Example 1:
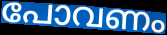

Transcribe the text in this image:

പോവണം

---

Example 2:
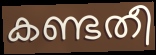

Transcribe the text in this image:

കണ്ടതീ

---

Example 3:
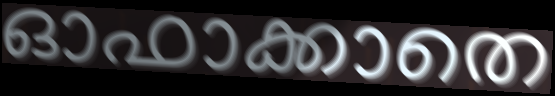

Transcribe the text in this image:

ഓഫാക്കാതെ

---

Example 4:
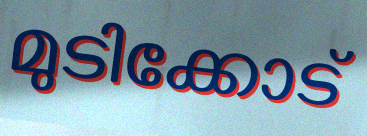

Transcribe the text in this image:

മുടിക്കോട്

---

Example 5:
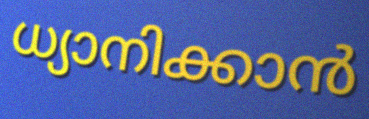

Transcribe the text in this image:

ധ്യാനിക്കാൻ